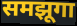
समझूगा